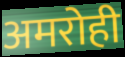
अमरोही